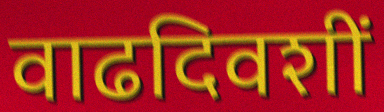
वाढदिवशीं